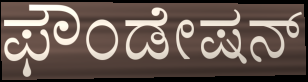
ಫೌಂಡೇಷನ್